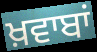
ਖ਼ਵਾਬਾਂ